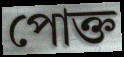
পোক্ত